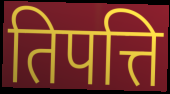
तिपत्ति